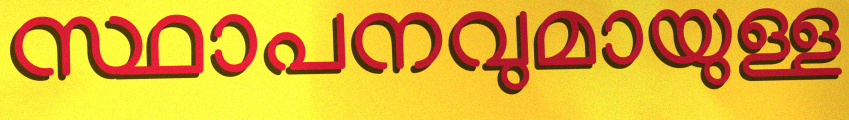
സ്ഥാപനവുമായുള്ള